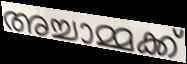
അച്ചാമ്മക്ക്